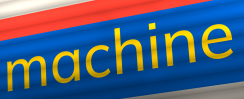
machine